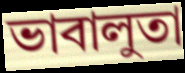
ভাবালুতা